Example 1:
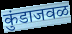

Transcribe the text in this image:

कुंडाजवळ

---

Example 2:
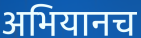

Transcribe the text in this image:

अभियानच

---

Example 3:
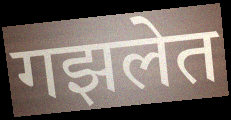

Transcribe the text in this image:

गझलेत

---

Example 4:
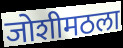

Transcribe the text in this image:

जोशीमठला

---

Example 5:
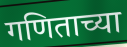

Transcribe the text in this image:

गणिताच्या